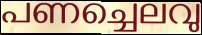
പണച്ചെലവു